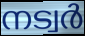
നട്വർ